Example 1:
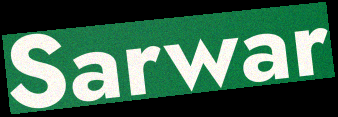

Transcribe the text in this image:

Sarwar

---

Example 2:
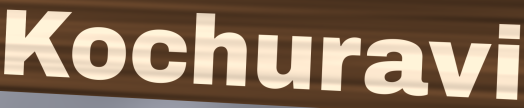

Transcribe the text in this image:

Kochuravi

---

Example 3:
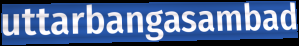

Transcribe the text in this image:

uttarbangasambad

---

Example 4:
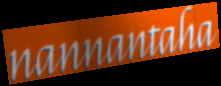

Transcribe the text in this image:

nannantaha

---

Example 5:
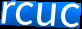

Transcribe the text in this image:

rcuc